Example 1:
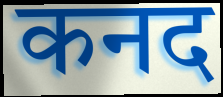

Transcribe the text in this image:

कनद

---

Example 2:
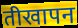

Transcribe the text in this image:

तीखापन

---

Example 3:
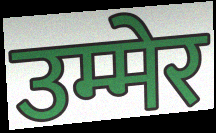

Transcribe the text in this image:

उम्मेर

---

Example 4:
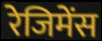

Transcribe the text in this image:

रेजिमेंस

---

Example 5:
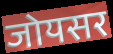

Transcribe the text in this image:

जोयसर